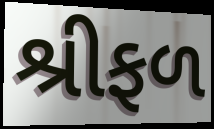
શ્રીફળ